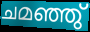
ചമഞ്ഞു്